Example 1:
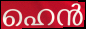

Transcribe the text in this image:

ഹെൻ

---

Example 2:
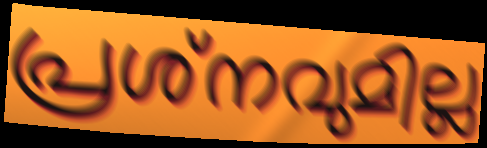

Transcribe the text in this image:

പ്രശ്‌നവുമില്ല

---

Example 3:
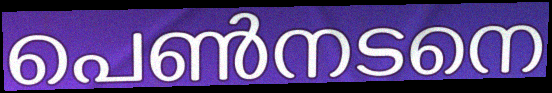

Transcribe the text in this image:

പെൺനടനെ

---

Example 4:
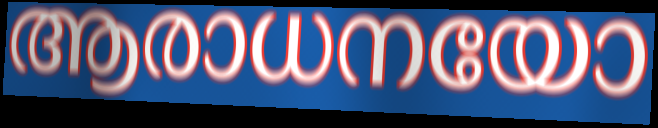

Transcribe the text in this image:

ആരാധനയോ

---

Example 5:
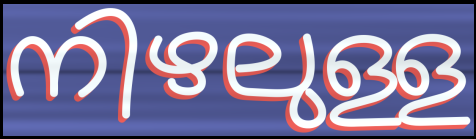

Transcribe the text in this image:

നിഴലുള്ള